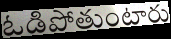
ఓడిపోతుంటారు